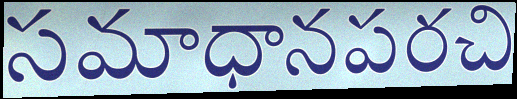
సమాధానపరచి